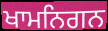
ਖਾਮਨਿਗਨ